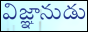
విజ్ఞానుడు